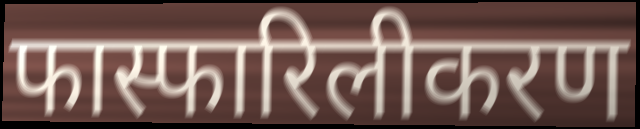
फास्फारिलीकरण